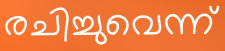
രചിച്ചുവെന്ന്